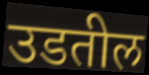
उडतील